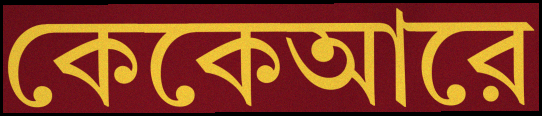
কেকেআরে